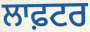
ਲਾਫ਼ਟਰ